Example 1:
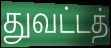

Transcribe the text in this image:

துவட்டத்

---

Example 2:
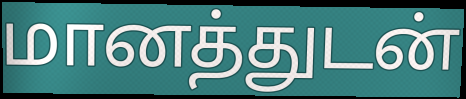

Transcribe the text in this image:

மானத்துடன்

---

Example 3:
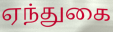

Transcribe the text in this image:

ஏந்துகை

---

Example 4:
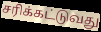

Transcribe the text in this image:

சரிக்கட்டுவது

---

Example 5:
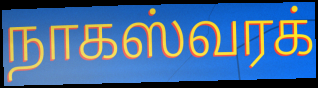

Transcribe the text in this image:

நாகஸ்வரக்